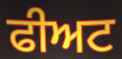
ਫੀਅਟ